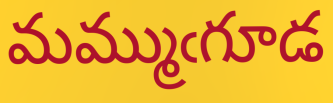
మమ్ముఁగూడ